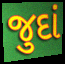
જુદાં